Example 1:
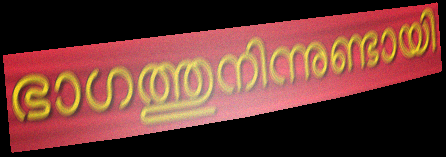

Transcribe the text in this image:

ഭാഗത്തുനിന്നുണ്ടായി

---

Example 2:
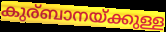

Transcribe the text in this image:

കുര്ബാനയ്ക്കുള്ള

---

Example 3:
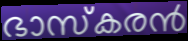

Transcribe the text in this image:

ഭാസ്കരൻ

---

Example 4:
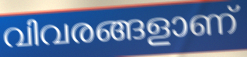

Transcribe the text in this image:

വിവരങ്ങളാണ്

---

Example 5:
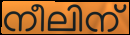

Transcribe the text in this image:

നീലിന്